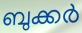
ബുക്കർ